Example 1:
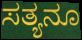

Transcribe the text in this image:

ಸತ್ಯನೂ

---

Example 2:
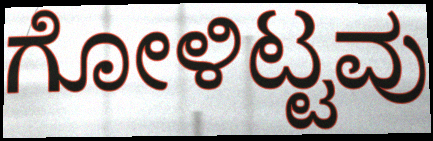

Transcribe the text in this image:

ಗೋಳಿಟ್ಟವು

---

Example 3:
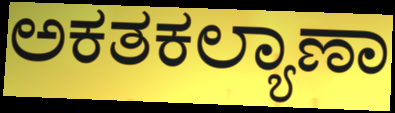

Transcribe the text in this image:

ಅಕತಕಲ್ಯಾಣಾ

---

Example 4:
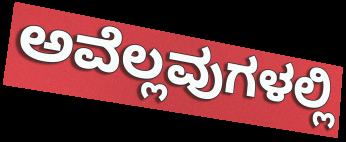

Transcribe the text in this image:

ಅವೆಲ್ಲವುಗಳಲ್ಲಿ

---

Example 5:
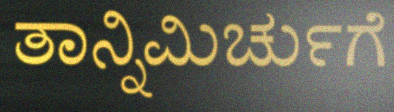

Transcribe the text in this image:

ತಾನ್ನಿಮಿರ್ಚುಗೆ